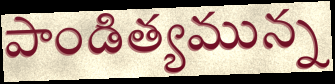
పాండిత్యమున్న